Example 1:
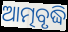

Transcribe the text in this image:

ଆତ୍ମବୃଦ୍ଧି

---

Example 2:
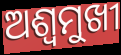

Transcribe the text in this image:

ଅଶ୍ୱମୁଖୀ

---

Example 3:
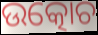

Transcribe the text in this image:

ଉତ୍କୋଚ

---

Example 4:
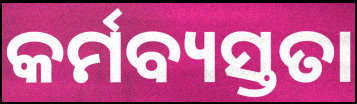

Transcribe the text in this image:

କର୍ମବ୍ୟସ୍ତତା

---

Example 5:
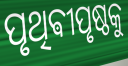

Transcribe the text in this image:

ପୃଥିଵୀପୃଷ୍ଠକୁ